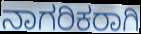
ನಾಗರಿಕರಾಗಿ